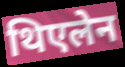
थिएलेन